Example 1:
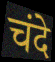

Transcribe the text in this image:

चंदे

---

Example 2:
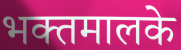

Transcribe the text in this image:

भक्तमालके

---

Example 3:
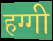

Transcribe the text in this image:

हग्गी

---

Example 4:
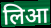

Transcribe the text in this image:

लिआ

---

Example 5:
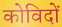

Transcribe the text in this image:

कोविदों